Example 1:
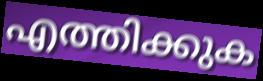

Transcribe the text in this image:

എത്തിക്കുക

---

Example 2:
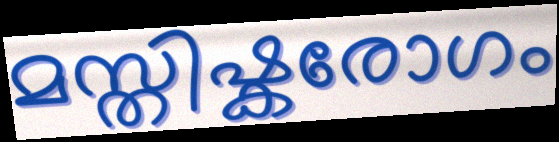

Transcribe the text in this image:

മസ്തിഷ്കരോഗം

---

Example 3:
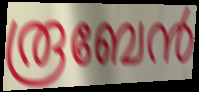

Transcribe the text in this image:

രൂബേൻ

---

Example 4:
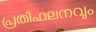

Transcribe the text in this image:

പ്രതിഫലനവും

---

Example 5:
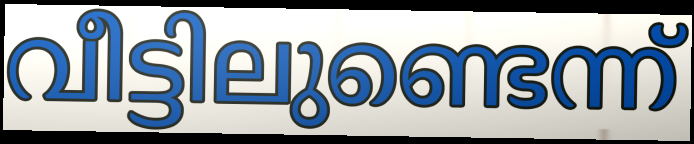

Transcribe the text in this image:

വീട്ടിലുണ്ടെന്ന്